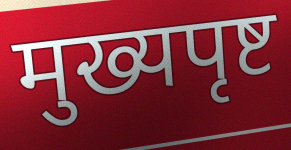
मुख्यपृष्ट